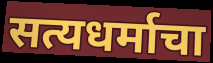
सत्यधर्माचा